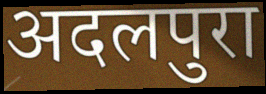
अदलपुरा